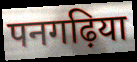
पनगढ़िया